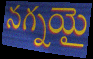
నగ్నయై